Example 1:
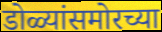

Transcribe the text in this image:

डोळ्यांसमोरच्या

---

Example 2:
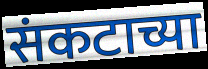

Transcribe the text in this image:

संकटाच्या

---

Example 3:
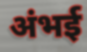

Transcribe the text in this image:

अंभई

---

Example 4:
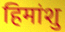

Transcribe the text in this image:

हिमांशु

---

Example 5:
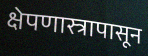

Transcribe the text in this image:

क्षेपणास्त्रापासून